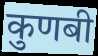
कुणबी